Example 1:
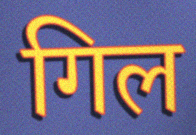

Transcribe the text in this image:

गिल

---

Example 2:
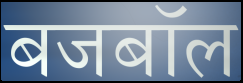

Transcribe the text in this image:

बजबॉल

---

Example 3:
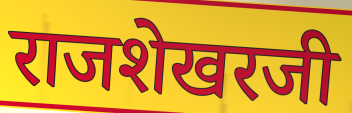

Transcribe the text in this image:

राजशेखरजी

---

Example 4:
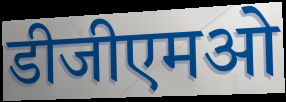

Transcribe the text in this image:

डीजीएमओ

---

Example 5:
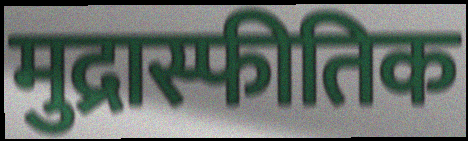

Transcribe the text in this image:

मुद्रास्फीतिक